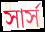
সার্স